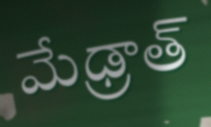
మేఢ్రాత్